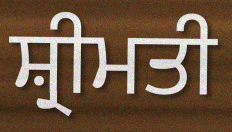
ਸ਼੍ਰੀਮਤੀ